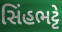
સિંહભટ્ટે